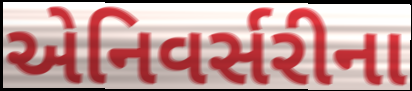
એનિવર્સરીના